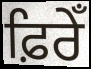
ਫ਼ਿਰੇਁ